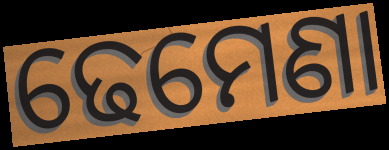
ଢେମେଣା